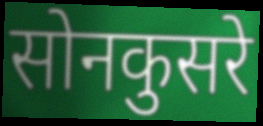
सोनकुसरे